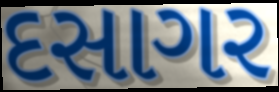
દસાગર